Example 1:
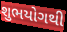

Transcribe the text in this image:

શુભયોગથી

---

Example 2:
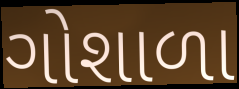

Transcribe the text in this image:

ગોશાળા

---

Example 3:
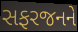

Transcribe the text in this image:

સફરજનને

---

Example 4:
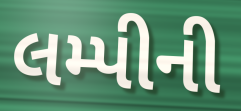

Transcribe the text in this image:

લમ્પીની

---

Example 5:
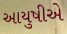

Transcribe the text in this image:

આયુષીએ